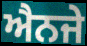
ਐਨਜੇ